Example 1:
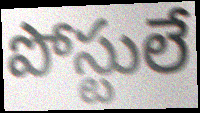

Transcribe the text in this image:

పోస్టులే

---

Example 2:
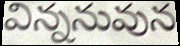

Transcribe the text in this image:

విన్ననువున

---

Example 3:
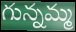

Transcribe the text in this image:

గున్నమ్మ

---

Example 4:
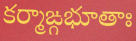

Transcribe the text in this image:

కర్మాఙ్గభూతాః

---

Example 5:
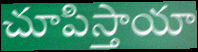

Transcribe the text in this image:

చూపిస్తాయా